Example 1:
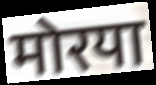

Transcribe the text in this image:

मोरया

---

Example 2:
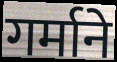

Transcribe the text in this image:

गर्माने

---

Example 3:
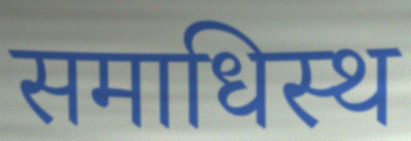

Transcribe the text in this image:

समाधिस्थ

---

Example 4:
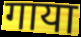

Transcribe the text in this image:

गाया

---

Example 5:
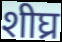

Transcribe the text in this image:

शीघ्र